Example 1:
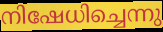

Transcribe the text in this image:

നിഷേധിച്ചെന്നു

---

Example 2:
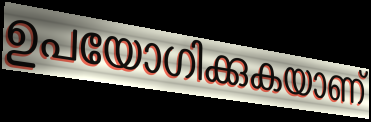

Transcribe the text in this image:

ഉപയോഗിക്കുകയാണ്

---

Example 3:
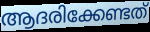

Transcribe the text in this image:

ആദരിക്കേണ്ടത്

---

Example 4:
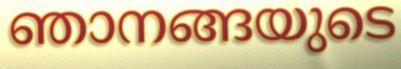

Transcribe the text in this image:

ഞാനങ്ങയുടെ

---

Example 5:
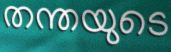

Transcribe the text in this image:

തന്തയുടെ